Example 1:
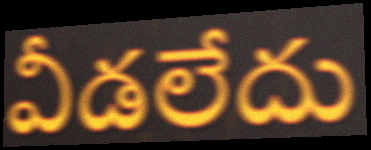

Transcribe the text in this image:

వీడలేదు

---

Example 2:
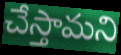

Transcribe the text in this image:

చేస్తామని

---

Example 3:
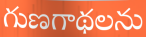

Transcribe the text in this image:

గుణగాథలను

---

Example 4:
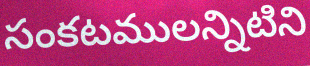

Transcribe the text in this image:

సంకటములన్నిటిని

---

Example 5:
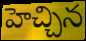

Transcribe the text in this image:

హెచ్చిన